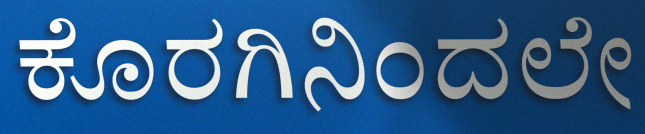
ಕೊರಗಿನಿಂದಲೇ